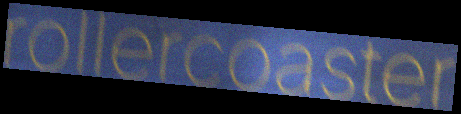
rollercoaster